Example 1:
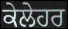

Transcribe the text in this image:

ਕੇਲੇਹਰ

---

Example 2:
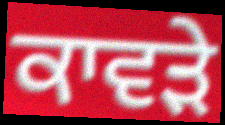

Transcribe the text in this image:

ਕਾਵੜੇ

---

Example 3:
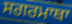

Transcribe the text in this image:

ਸਗਰਮਾਥਾ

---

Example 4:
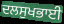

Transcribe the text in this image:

ਦਲਸੁਖਭਾਈ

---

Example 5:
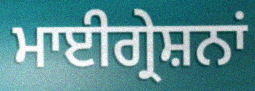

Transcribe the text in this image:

ਮਾਈਗ੍ਰੇਸ਼ਨਾਂ